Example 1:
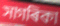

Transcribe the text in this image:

সাগৰিকা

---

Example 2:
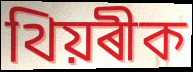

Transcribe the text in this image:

থিয়ৰীক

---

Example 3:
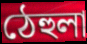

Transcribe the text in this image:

ঠেহুলা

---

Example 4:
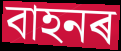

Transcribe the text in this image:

বাহনৰ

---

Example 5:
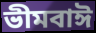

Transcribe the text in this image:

ভীমবাঈ